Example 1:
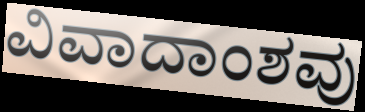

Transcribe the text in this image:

ವಿವಾದಾಂಶವು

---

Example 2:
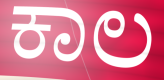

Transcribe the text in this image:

ಕಾಲ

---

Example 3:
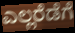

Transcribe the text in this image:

ಎಲ್ಲರೆಡೆಗೆ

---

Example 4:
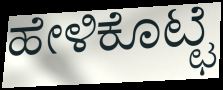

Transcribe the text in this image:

ಹೇಳಿಕೊಟ್ಟೆ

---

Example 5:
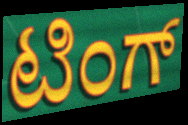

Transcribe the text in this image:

ಟಿಂಗ್